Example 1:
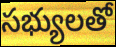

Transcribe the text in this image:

సభ్యులతో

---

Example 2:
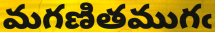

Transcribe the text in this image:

మగణితముగఁ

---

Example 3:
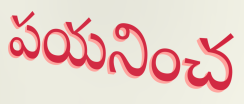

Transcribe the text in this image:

పయనించ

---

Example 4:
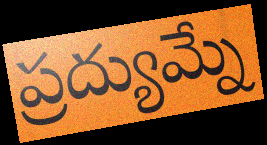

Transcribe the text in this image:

ప్రద్యుమ్నే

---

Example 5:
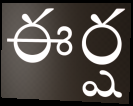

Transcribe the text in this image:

ఈర్ష